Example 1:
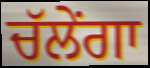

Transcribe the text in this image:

ਚੱਲੇਂਗਾ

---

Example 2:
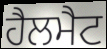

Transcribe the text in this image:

ਹੈਲਮੈਟ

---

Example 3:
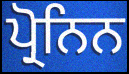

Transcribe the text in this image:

ਪ੍ਰੋਨਿਨ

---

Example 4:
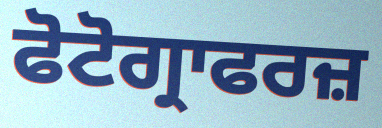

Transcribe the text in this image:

ਫੋਟੋਗ੍ਰਾਫਰਜ਼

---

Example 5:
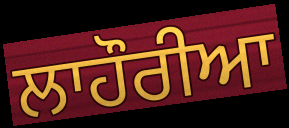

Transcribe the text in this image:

ਲਾਹੌਰੀਆ